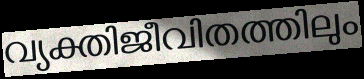
വ്യക്തിജീവിതത്തിലും